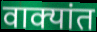
वाक्यांत